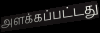
அளக்கப்பட்டது